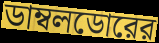
ডাম্বলডোরের